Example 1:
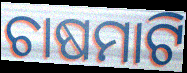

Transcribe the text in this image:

ଚାଷମାଟି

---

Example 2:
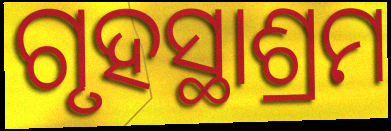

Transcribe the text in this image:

ଗୃହସ୍ଥାଶ୍ରମ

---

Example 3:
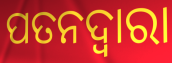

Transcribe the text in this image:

ପତନଦ୍ଵାରା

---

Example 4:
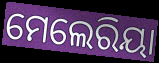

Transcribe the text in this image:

ମେଲେରିୟା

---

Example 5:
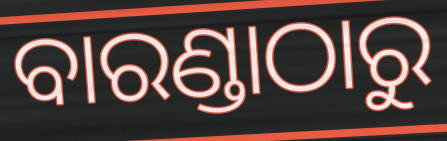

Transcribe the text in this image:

ବାରଣ୍ଡାଠାରୁ